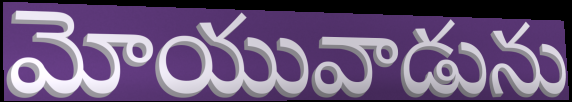
మోయువాడును